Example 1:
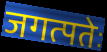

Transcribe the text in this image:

जगत्पतेः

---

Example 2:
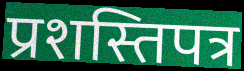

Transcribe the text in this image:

प्रशस्तिपत्र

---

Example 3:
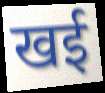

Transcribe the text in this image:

खई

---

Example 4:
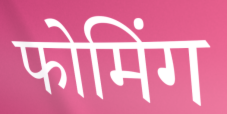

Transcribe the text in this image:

फोमिंग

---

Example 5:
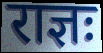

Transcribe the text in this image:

राज्ञः